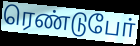
ரெண்டுபேர்